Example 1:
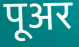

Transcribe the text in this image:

पूअर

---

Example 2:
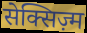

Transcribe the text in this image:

सेक्सिज़्म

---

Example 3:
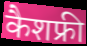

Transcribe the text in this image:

कैशफ्री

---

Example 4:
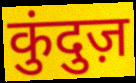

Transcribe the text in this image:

कुंदुज़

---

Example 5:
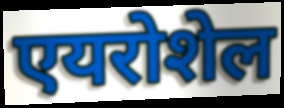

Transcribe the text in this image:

एयरोशेल